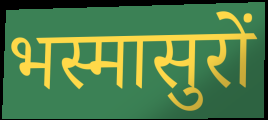
भस्मासुरों